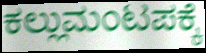
ಕಲ್ಲುಮಂಟಪಕ್ಕೆ